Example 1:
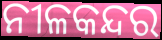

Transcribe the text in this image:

ନୀଳକନ୍ଦର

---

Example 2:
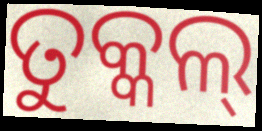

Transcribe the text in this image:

ତୁକ୍କଲ୍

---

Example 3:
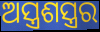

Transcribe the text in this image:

ଅସ୍ତ୍ରଶସ୍ତ୍ରର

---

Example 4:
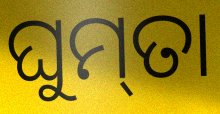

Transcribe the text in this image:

ଘୁମ୍‌ତା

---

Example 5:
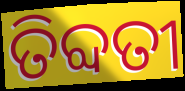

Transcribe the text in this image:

ତିବ୍ଦତୀ